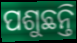
ପଶୁଛନ୍ତି